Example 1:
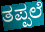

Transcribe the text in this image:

ತಪ್ಪಲೆ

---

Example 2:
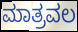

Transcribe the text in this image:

ಮಾತ್ರವಲ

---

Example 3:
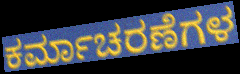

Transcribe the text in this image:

ಕರ್ಮಾಚರಣೆಗಳ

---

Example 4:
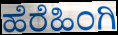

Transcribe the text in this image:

ಹೆರೆಹಿಂಗಿ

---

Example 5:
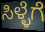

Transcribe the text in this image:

ಸಿಳ್ಳೆಗೆ